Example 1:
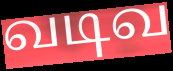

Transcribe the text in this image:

வடிவ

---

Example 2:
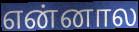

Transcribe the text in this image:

என்னால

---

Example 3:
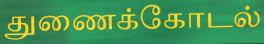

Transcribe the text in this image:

துணைக்கோடல்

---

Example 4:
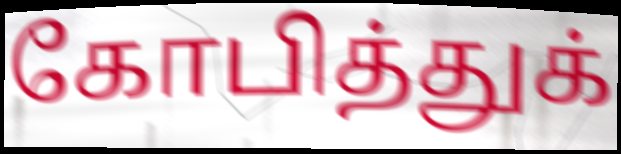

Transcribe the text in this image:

கோபித்துக்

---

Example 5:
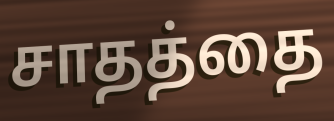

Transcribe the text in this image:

சாதத்தை